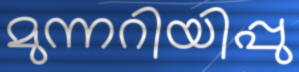
മുന്നറിയിപ്പു